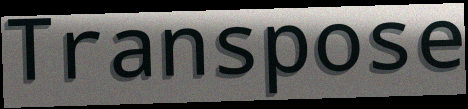
Transpose